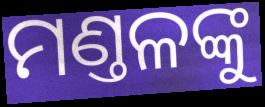
ମଣ୍ତଳଙ୍କୁ